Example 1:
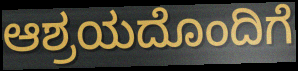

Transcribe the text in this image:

ಆಶ್ರಯದೊಂದಿಗೆ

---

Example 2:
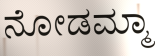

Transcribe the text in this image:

ನೋಡಮ್ಮಾ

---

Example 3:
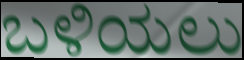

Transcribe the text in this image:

ಬಳಿಯಲು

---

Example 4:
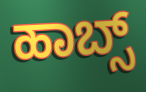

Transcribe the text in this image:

ಹಾಬ್ಸ್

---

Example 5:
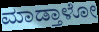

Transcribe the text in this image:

ಮಾಡ್ತಾಳೋ